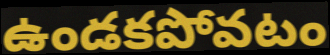
ఉండకపోవటం